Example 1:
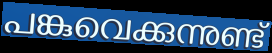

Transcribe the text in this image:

പങ്കുവെക്കുന്നുണ്ട്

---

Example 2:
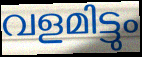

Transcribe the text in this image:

വളമിട്ടും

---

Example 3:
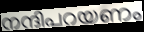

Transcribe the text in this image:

നന്ദിപറയണം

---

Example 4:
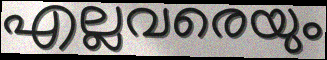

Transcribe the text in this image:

എല്ലവരെയും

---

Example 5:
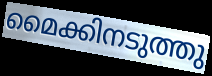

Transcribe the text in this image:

മൈക്കിനടുത്തു